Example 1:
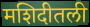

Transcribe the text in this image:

मशिदीतली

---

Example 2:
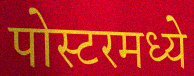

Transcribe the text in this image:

पोस्टरमध्ये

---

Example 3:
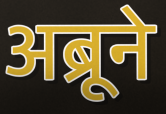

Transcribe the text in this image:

अब्रूने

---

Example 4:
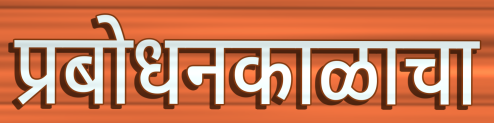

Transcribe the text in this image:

प्रबोधनकाळाचा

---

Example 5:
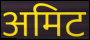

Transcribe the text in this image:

अमिट